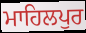
ਮਾਹਿਲਪੁਰ